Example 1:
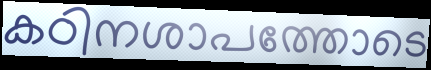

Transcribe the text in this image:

കഠിനശാപത്തോടെ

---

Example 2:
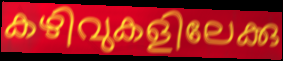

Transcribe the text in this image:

കഴിവുകളിലേക്കു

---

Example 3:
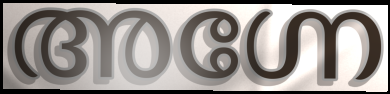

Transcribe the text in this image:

അഗ്നേ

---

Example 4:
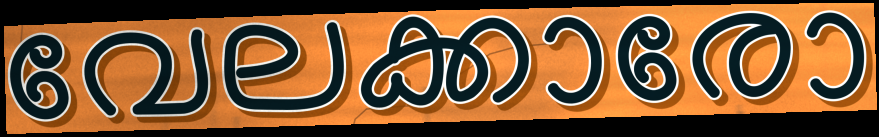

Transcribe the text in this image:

വേലക്കാരോ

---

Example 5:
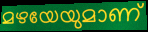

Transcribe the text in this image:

മഴയേയുമാണ്